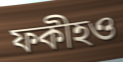
ফকীহও